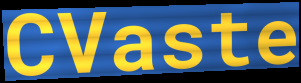
CVaste